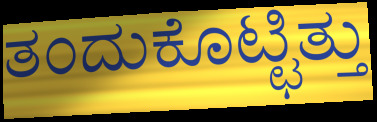
ತಂದುಕೊಟ್ಟಿತ್ತು